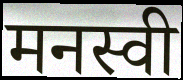
मनस्वी